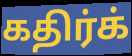
கதிர்க்